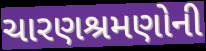
ચારણશ્રમણોની